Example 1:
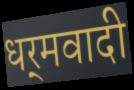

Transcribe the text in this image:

धर्मवादी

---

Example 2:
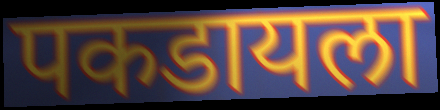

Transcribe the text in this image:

पकडायला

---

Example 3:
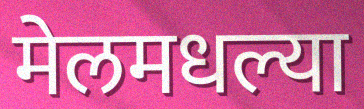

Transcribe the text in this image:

मेलमधल्या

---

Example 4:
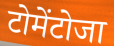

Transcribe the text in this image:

टोमेंटोजा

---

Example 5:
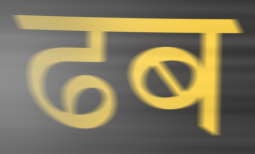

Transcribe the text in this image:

ढब